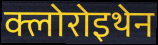
क्लोरोइथेन